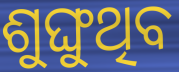
ଶୁଙ୍ଘୁଥିବ